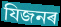
যিজনৰ